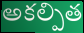
అకల్పిత